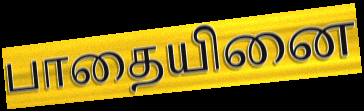
பாதையினை